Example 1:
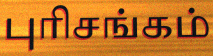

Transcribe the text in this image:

புரிசங்கம்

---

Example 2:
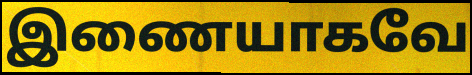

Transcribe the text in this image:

இணையாகவே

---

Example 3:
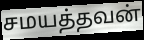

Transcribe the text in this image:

சமயத்தவன்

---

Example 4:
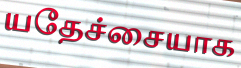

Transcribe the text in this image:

யதேச்சையாக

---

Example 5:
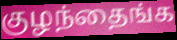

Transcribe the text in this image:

குழந்தைங்க